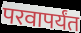
परवापर्यंत